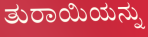
ತುರಾಯಿಯನ್ನು